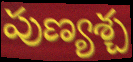
పుణ్యశ్చ